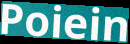
Poiein